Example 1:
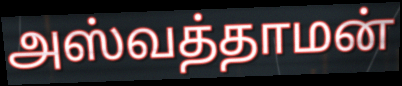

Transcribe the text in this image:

அஸ்வத்தாமன்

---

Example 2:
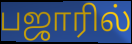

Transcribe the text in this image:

பஜாரில்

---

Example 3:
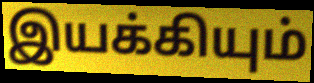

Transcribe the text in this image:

இயக்கியும்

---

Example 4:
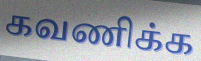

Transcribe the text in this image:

கவணிக்க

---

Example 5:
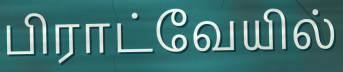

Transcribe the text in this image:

பிராட்வேயில்